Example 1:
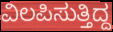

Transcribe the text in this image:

ವಿಲಪಿಸುತ್ತಿದ್ದ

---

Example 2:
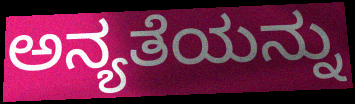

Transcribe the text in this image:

ಅನ್ಯತೆಯನ್ನು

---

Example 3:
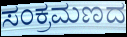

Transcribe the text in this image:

ಸಂಕ್ರಮಣದ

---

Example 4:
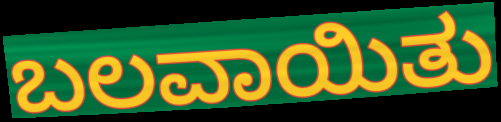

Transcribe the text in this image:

ಬಲವಾಯಿತು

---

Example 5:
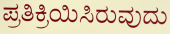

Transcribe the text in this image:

ಪ್ರತಿಕ್ರಿಯಿಸಿರುವುದು